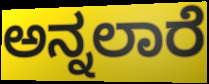
ಅನ್ನಲಾರೆ